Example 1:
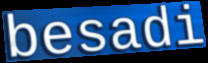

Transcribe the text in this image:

besadi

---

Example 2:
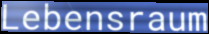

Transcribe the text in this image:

Lebensraum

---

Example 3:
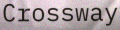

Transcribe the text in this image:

Crossway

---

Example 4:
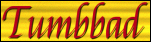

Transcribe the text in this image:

Tumbbad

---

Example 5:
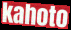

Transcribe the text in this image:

kahoto